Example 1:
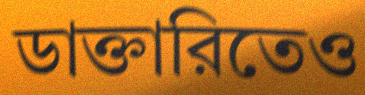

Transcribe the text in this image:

ডাক্তারিতেও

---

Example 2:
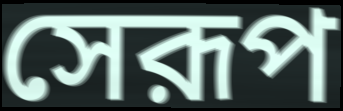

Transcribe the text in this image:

সেরূপ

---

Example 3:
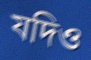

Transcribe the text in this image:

যদিও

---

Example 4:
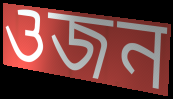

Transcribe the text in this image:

ওজন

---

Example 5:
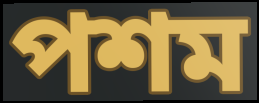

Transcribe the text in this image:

পশম